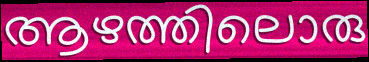
ആഴത്തിലൊരു